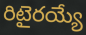
రిటైరయ్యే